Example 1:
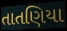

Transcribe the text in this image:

તાતણિયા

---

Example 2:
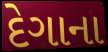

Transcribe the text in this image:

દેગાના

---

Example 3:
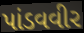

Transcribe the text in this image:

પાંડવવીર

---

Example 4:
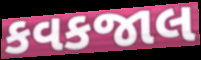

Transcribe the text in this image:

કવકજાલ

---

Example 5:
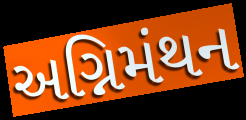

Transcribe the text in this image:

અગ્નિમંથન